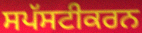
ਸਪੱਸਟੀਕਰਨ